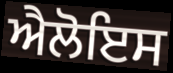
ਐਲੋਇਸ